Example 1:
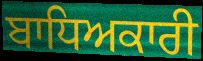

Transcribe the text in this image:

ਬਾਧਿਅਕਾਰੀ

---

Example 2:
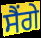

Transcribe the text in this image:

ਸੈਂਗੇ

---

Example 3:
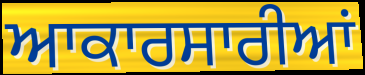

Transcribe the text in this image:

ਆਕਾਰਸਾਰੀਆਂ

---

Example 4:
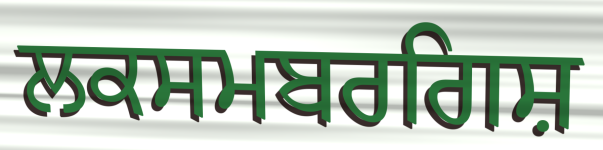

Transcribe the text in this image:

ਲਕਸਮਬਰਗਿਸ਼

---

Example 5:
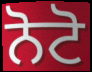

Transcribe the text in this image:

ਨੋਟੋ